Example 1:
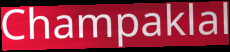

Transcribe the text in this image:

Champaklal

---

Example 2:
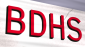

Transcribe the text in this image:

BDHS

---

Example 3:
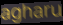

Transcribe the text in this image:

agharu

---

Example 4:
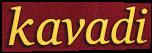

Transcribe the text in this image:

kavadi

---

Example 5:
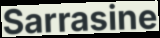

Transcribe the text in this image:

Sarrasine